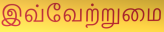
இவ்வேற்றுமை